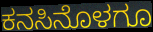
ಕನಸಿನೊಳಗೂ